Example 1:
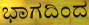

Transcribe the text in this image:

ಭಾಗದಿಂದ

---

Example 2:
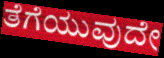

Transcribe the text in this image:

ತೆಗೆಯುವುದೇ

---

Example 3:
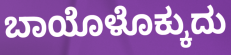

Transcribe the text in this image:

ಬಾಯೊಳೊಕ್ಕುದು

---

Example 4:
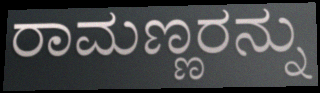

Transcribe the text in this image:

ರಾಮಣ್ಣರನ್ನು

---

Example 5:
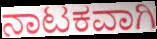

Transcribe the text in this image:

ನಾಟಕವಾಗಿ